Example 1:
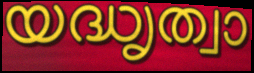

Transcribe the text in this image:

യദ്ധൃത്വാ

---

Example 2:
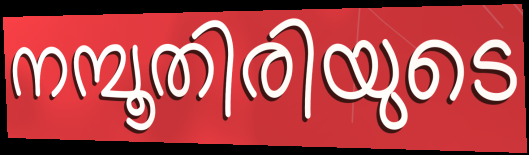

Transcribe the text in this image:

നമ്പൂതിരിയുടെ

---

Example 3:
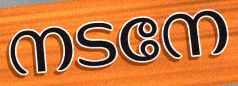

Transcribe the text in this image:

നടനേ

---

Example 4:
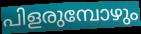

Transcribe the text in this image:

പിളരുമ്പോഴും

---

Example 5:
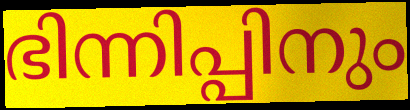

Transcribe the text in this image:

ഭിന്നിപ്പിനും